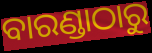
ବାରଣ୍ଡାଠାରୁ